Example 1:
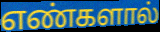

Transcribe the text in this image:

எண்களால்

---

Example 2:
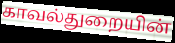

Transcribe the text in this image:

காவல்துறையின்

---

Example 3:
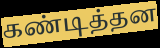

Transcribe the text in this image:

கண்டித்தன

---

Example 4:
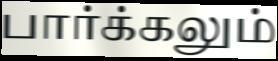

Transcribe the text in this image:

பார்க்கலும்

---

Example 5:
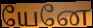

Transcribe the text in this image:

யேனே